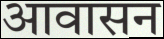
आवासन